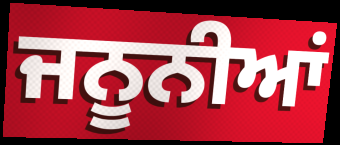
ਜਨੂਨੀਆਂ